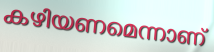
കഴിയണമെന്നാണ്